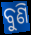
ବୁଣି